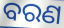
ବରଣ